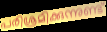
പരിശ്രമിക്കുന്നുണ്ട്